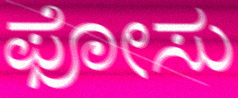
ಫೋಸು